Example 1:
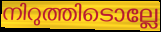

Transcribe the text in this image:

നിറുത്തിടൊല്ലേ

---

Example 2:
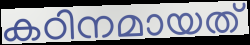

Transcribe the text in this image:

കഠിനമായത്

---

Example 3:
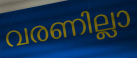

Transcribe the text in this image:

വരണില്ലാ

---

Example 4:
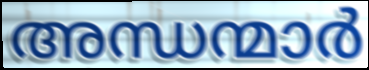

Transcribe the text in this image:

അന്ധന്മാർ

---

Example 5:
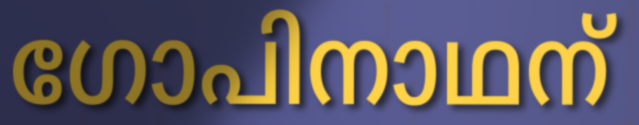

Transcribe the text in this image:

ഗോപിനാഥന്